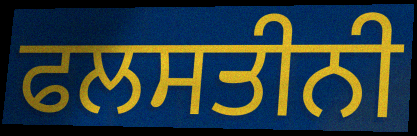
ਫਲਸਤੀਨੀ